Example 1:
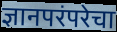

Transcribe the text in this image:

ज्ञानपरंपरेचा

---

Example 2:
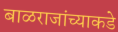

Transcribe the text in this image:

बाळराजांच्याकडे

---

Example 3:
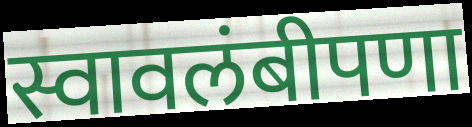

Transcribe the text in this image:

स्वावलंबीपणा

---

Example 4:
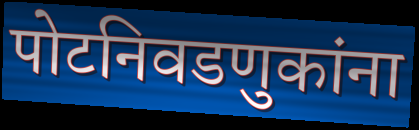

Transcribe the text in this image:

पोटनिवडणुकांना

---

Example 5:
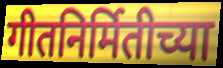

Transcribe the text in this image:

गीतनिर्मितीच्या